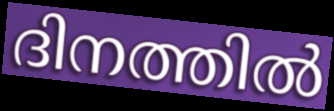
ദിനത്തിൽ